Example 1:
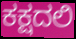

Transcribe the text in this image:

ಕಕ್ಷದಲಿ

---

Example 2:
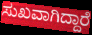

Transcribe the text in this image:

ಸುಖವಾಗಿದ್ದಾರೆ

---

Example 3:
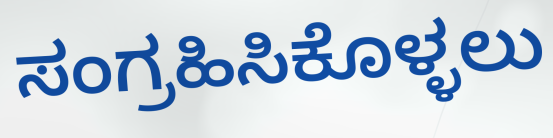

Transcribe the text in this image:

ಸಂಗ್ರಹಿಸಿಕೊಳ್ಳಲು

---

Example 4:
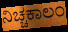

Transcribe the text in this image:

ನಿಚ್ಚಕಾಲಂ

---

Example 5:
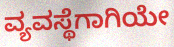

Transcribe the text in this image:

ವ್ಯವಸ್ಥೆಗಾಗಿಯೇ